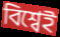
বিশ্বেই